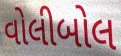
વોલીબોલ